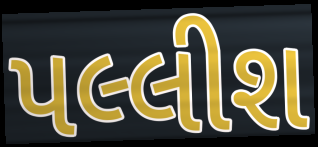
પલ્લીશ